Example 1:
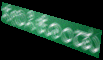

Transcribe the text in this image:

ಸೇರಿಸಿಕೊಂಡು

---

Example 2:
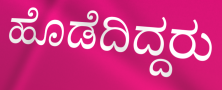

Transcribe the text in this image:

ಹೊಡೆದಿದ್ದರು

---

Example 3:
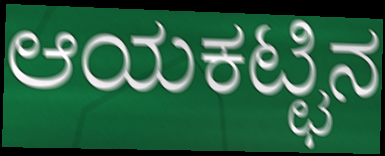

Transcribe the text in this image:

ಆಯಕಟ್ಟಿನ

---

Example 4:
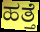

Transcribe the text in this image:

ಹತ್ತೆ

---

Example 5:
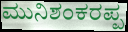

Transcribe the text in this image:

ಮುನಿಶಂಕರಪ್ಪ